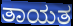
ತಾಯತ